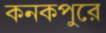
কনকপুরে